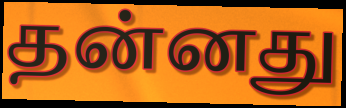
தன்னது